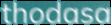
thodasa